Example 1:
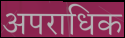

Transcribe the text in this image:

अपराधिक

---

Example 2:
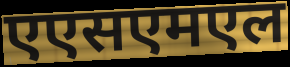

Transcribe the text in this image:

एएसएमएल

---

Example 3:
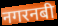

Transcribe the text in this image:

नगरनबी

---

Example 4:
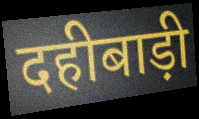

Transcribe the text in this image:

दहीबाड़ी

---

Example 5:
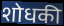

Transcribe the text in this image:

शोधकी